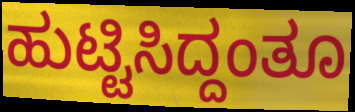
ಹುಟ್ಟಿಸಿದ್ದಂತೂ